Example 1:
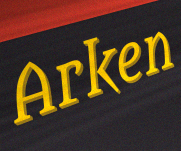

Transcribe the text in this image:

Arken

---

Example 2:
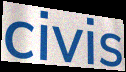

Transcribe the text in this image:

civis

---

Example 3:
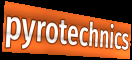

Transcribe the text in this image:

pyrotechnics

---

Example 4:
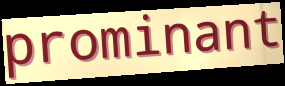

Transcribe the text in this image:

prominant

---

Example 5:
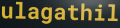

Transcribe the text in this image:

ulagathil